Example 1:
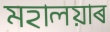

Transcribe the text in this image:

মহালয়াৰ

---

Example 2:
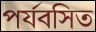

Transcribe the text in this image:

পৰ্যবসিত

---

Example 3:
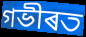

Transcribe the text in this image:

গভীৰত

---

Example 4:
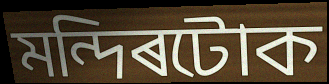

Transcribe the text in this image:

মন্দিৰটোক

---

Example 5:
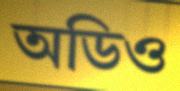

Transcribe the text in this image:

অডিও